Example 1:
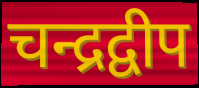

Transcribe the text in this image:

चन्द्रद्वीप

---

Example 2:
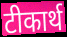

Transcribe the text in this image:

टीकार्थ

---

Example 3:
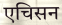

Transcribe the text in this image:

एचिसन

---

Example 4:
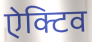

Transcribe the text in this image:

ऐक्टिव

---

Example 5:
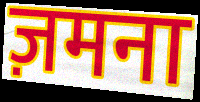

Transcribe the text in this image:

ज़मना